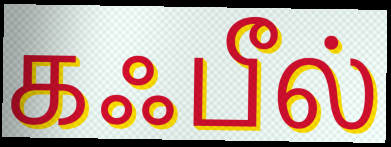
கஃபீல்